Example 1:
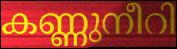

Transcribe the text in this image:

കണ്ണുനീറി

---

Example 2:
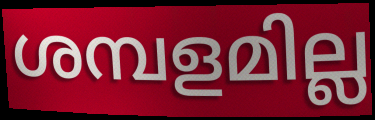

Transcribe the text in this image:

ശമ്പളമില്ല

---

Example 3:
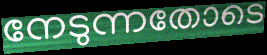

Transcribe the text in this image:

നേടുന്നതോടെ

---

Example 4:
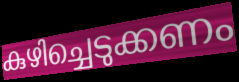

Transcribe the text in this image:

കുഴിച്ചെടുക്കണം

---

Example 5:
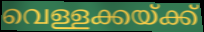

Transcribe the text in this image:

വെള്ളക്കയ്ക്ക്